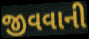
જીવવાની